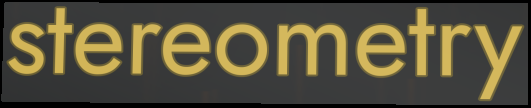
stereometry